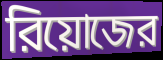
রিয়োজের